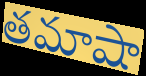
తమాషా